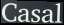
Casal